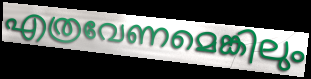
എത്രവേണമെങ്കിലും